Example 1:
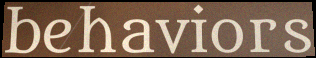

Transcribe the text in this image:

behaviors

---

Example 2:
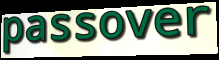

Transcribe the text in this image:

passover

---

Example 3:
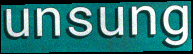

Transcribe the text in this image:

unsung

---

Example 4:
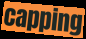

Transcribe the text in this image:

capping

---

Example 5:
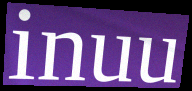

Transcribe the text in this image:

inuu